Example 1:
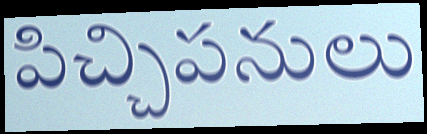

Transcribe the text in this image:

పిచ్చిపనులు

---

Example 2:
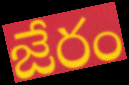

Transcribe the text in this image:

జేరం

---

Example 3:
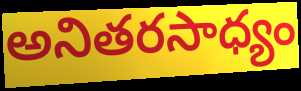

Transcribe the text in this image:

అనితరసాధ్యం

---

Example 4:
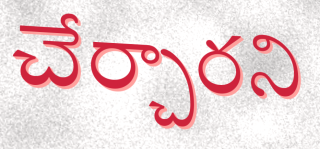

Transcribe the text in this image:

చేర్చారని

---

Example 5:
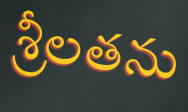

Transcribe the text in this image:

శ్రీలతను